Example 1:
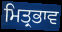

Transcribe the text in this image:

ਮਿਤ੍ਰਭਾਵ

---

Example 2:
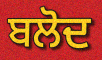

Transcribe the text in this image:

ਬਲੋਦ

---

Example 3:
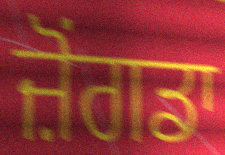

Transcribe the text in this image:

ਜ਼ੋਂਗਡਾ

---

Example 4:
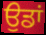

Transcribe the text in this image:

ਉਡਾਂ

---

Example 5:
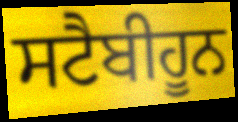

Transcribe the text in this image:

ਸਟੈਬੀਹੂਨ